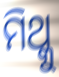
ମିଥ୍କୁ